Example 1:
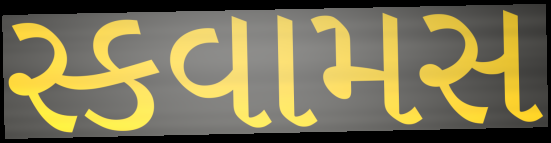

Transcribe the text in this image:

સ્કવામસ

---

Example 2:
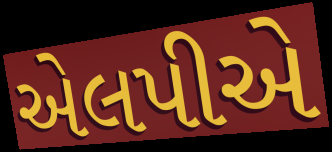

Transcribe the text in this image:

એલપીએ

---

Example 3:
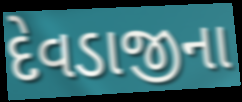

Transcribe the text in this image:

દેવડાજીના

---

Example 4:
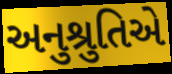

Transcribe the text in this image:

અનુશ્રુતિએ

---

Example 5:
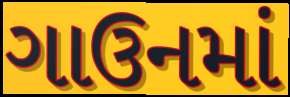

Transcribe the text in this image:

ગાઉનમાં